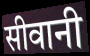
सीवानी